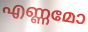
എണ്ണമോ